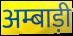
अम्बाड़ी